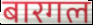
बारगल